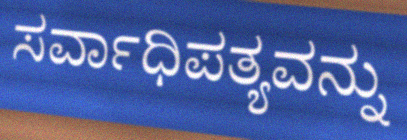
ಸರ್ವಾಧಿಪತ್ಯವನ್ನು